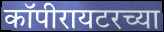
कॉपीरायटरच्या